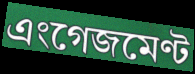
এংগেজমেণ্ট